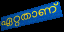
ഏറ്റതാണ്